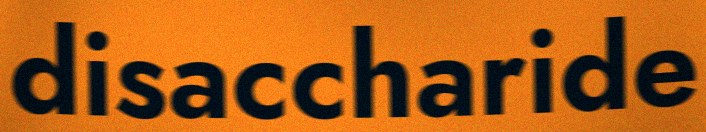
disaccharide